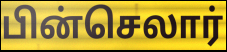
பின்செலார்